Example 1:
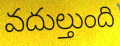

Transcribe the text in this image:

వదుల్తుంది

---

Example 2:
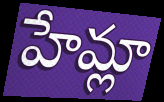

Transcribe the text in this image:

హేమ్లా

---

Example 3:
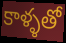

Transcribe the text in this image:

కాళ్ళతో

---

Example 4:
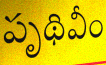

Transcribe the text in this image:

పృథివీం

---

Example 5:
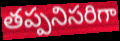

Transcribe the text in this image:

తప్పనిసరిగా